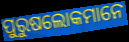
ପୁରୁଷଲୋକମାନେ